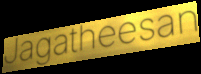
Jagatheesan